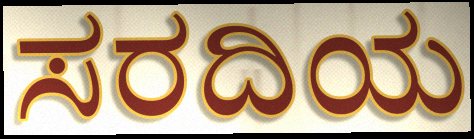
ಸರದಿಯ